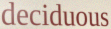
deciduous